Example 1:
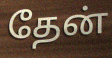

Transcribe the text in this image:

தேன்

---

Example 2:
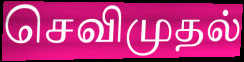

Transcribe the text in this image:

செவிமுதல்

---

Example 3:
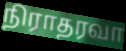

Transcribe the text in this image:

நிராதரவா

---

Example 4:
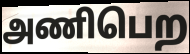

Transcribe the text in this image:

அணிபெற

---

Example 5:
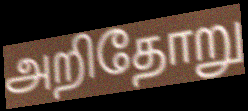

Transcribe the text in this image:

அறிதோறு